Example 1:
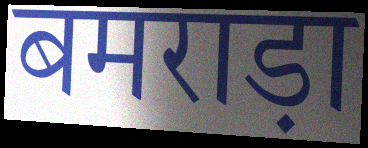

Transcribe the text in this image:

बमराड़ा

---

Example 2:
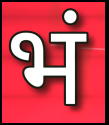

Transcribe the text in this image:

भं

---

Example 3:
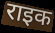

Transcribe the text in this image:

राइक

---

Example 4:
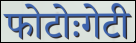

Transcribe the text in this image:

फोटोःगेटी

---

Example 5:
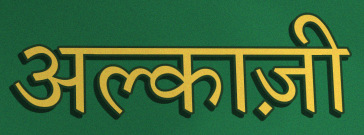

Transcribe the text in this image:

अल्काज़ी